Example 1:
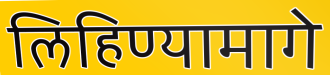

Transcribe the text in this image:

लिहिण्यामागे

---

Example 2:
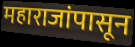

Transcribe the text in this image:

महाराजांपासून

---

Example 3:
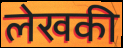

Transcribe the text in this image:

लेखकी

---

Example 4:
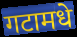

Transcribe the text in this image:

गटामधे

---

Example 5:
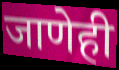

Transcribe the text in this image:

जाणेही